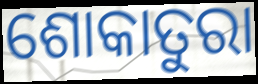
ଶୋକାତୁରା